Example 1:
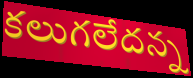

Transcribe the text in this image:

కలుగలేదన్న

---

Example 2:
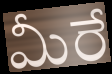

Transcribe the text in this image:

మీరే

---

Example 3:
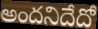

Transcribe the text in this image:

అందనిదేదో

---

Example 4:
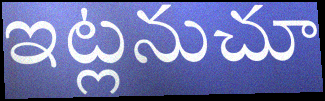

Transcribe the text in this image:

ఇట్లనుచూ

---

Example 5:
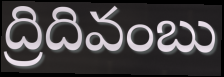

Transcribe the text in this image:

ద్రిదివంబు